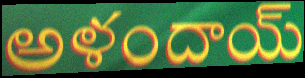
అళందాయ్